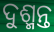
ଦୁଶ୍ମନ୍ତ